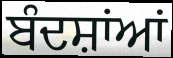
ਬੰਦਸ਼ਾਂਆਂ